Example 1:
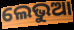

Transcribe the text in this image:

ଲେଭୁଆ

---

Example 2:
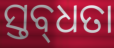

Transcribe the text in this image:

ସ୍ତବ୍‌ଧତା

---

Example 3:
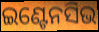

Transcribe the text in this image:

ଇଣ୍ଟେନସିଭ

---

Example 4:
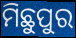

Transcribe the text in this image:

ମିଛୁପୁର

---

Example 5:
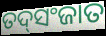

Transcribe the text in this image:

ତଦ୍‌ସଂଜାତ